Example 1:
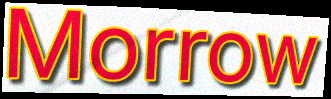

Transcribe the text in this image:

Morrow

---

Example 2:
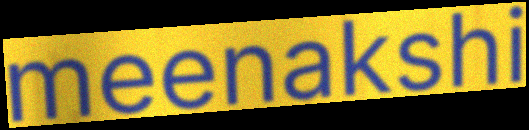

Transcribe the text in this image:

meenakshi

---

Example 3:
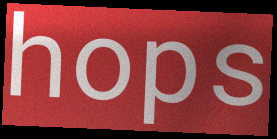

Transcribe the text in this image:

hops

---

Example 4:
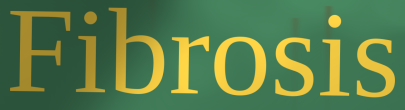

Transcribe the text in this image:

Fibrosis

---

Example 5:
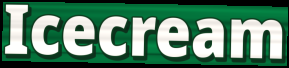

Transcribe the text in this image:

Icecream